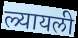
ल्यायली